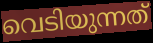
വെടിയുന്നത്